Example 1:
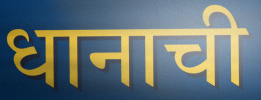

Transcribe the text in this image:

धानाची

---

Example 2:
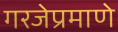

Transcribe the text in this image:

गरजेप्रमाणे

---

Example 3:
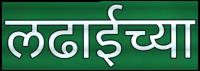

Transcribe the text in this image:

लढाईच्या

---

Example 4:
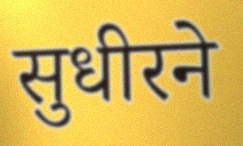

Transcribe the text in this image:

सुधीरने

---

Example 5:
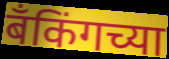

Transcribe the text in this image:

बँकिंगच्या